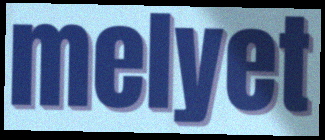
melyet